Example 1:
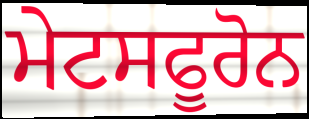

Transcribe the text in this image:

ਮੇਟਸਫੂਰੋਨ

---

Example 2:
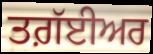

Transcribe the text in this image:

ਤਗ਼ੱਈਅਰ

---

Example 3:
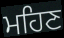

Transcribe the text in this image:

ਮਹਿਣ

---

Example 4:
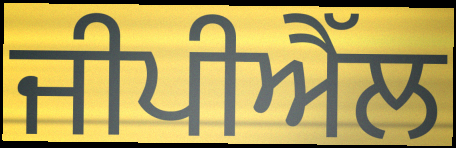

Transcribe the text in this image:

ਜੀਪੀਐੱਲ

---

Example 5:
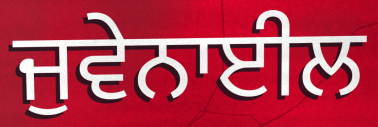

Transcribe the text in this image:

ਜੁਵੇਨਾਈਲ